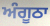
ਅੰਗੂਠਾ